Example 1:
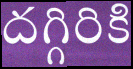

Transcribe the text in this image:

దగ్గిరికి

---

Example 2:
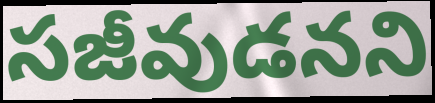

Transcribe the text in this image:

సజీవుడనని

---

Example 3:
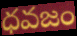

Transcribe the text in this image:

ధవజం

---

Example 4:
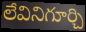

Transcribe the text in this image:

లేవినిగూర్చి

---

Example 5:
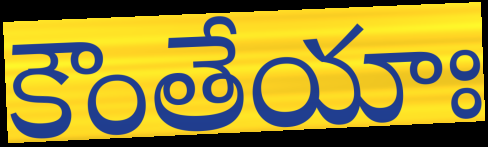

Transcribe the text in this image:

కౌంతేయాః